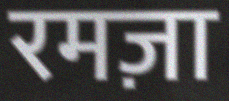
रमज़ा